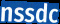
nssdc